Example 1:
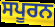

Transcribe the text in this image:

ਸਪੂਰਨ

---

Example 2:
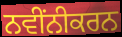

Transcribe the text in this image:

ਨਵੀਂਨੀਕਰਨ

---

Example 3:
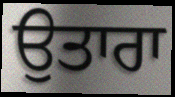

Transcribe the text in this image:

ਉਤਾਰਾ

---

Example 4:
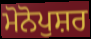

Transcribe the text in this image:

ਮੋਨੋਪੁਸ਼ਰ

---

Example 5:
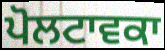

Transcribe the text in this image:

ਪੋਲਟਾਵਕਾ